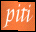
piti